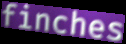
finches